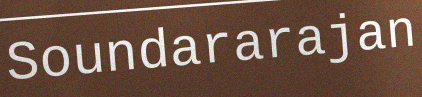
Soundararajan